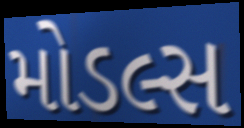
મોડલ્સ